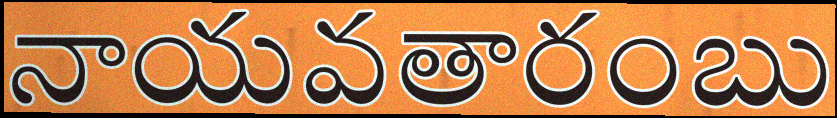
నాయవతారంబు